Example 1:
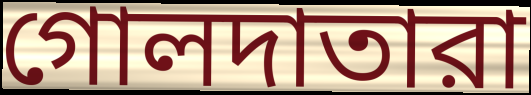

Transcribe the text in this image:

গোলদাতারা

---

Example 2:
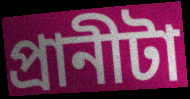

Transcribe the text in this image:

প্রানীটা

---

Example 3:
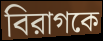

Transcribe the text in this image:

বিরাগকে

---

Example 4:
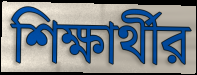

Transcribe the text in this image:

শিক্ষার্থীর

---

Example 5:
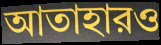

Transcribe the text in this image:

আতাহারও